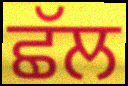
ਛੱਲ